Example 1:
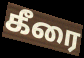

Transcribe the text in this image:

கீரை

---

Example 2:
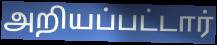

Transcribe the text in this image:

அறியப்பட்டார்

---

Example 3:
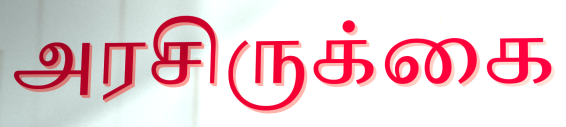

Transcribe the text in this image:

அரசிருக்கை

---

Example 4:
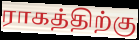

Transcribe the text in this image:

ராகத்திற்கு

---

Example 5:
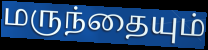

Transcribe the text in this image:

மருந்தையும்